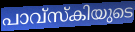
പാവ്സ്കിയുടെ